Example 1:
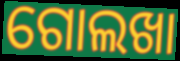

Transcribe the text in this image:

ଗୋଲଖା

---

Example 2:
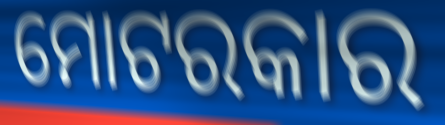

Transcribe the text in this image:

ମୋଟରକାର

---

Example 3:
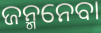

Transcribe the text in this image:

ଜନ୍ମନେବା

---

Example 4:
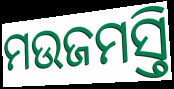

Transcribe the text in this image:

ମଉଜମସ୍ତି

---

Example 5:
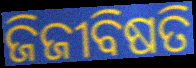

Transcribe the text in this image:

ଜିଜୀବିଷତି